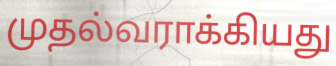
முதல்வராக்கியது